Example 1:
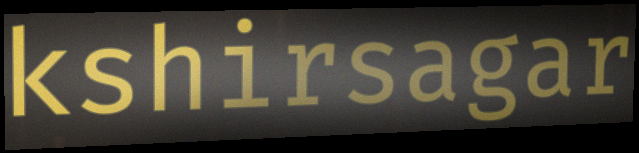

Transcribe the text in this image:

kshirsagar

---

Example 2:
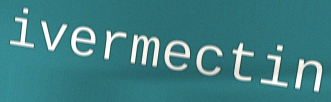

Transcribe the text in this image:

ivermectin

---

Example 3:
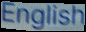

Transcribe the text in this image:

English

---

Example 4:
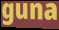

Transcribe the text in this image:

guna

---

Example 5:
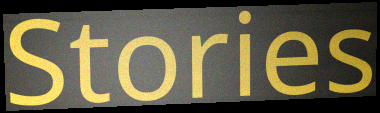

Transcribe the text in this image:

Stories